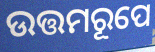
ଉତ୍ତମରୂପେ